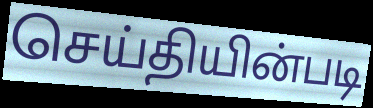
செய்தியின்படி